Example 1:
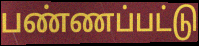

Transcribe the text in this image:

பண்ணப்பட்டு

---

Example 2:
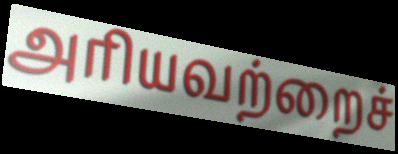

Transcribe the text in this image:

அரியவற்றைச்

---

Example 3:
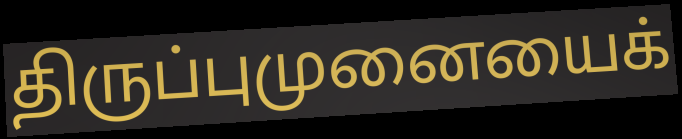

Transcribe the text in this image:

திருப்புமுனையைக்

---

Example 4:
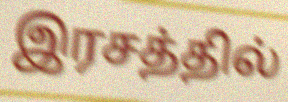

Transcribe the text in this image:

இரசத்தில்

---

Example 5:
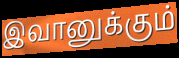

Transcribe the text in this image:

இவானுக்கும்